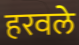
हरवले